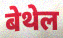
बेथेल